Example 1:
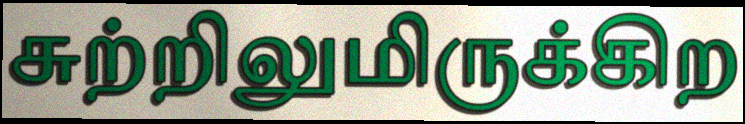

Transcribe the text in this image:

சுற்றிலுமிருக்கிற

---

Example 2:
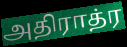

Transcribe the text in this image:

அதிராத்ர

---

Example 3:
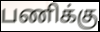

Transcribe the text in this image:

பணிக்கு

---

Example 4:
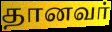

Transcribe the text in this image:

தானவர்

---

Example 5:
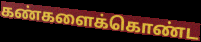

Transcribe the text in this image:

கண்களைக்கொண்ட